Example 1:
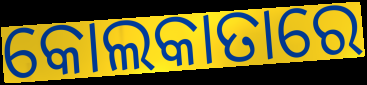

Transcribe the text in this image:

କୋଲକାତାରେ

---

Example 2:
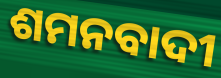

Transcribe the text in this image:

ଶମନବାଦୀ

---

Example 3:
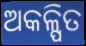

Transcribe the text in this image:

ଅକଳ୍ପିତ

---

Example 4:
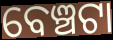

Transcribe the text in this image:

ବେଞ୍ଚଟା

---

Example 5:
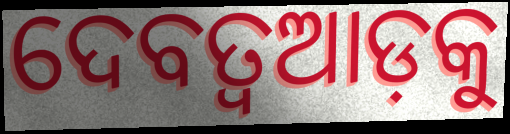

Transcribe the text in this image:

ଦେବତ୍ୱଆଡ଼କୁ